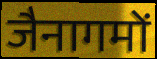
जैनागमों